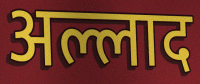
अल्लाद